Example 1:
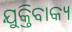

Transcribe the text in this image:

ଯୁକ୍ତିବାକ୍ୟ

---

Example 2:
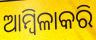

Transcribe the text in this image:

ଆମ୍ବିଳାକରି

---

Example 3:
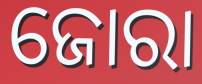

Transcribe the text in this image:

ଜୋରା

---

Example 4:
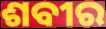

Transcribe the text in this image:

ଶବୀର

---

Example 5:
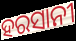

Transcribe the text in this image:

ହରସାନୀ